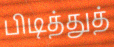
பிடித்துத்